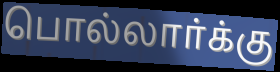
பொல்லார்க்கு